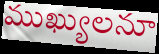
ముఖ్యులనూ